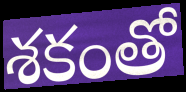
శకంతో